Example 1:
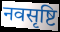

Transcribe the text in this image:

नवसृष्टि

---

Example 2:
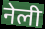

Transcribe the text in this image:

नेली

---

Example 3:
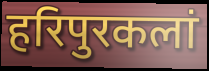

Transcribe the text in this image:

हरिपुरकलां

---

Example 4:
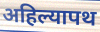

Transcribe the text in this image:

अहिल्यापथ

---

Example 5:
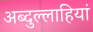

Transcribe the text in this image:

अब्दुल्लाहियां